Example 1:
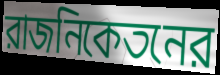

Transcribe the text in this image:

রাজনিকেতনের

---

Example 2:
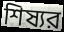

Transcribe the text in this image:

শিষ্যর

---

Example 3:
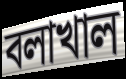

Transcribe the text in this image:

বলাখাল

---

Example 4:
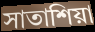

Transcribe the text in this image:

সাতাশিয়া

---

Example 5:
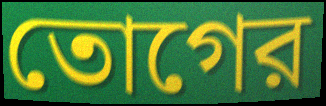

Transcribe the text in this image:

তোগের